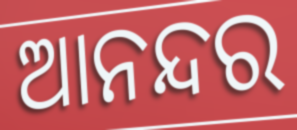
ଆନନ୍ଦର